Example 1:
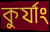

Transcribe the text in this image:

কুর্যাং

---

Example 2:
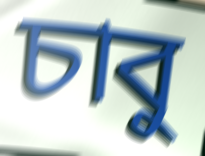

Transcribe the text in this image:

চাবু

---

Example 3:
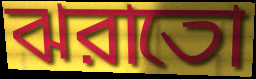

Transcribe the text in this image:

ঝরাতো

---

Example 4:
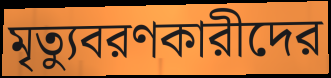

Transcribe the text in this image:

মৃত্যুবরণকারীদের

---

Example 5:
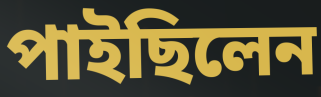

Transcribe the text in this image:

পাইছিলেন